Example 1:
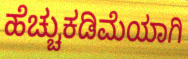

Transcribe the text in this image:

ಹೆಚ್ಚುಕಡಿಮೆಯಾಗಿ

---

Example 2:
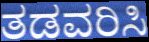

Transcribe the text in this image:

ತಡವರಿಸಿ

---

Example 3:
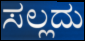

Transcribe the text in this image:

ಸಲ್ಲದು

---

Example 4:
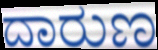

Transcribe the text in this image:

ದಾರುಣ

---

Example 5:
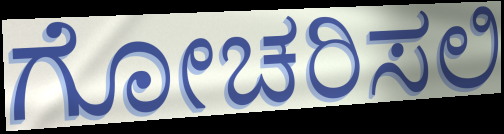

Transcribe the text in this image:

ಗೋಚರಿಸಲಿ